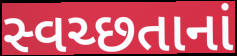
સ્વચ્છતાનાં